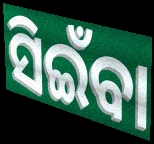
ସିଇଁବା